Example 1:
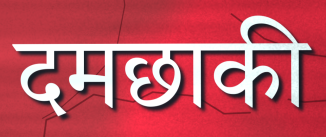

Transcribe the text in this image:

दमछाकी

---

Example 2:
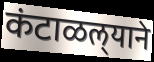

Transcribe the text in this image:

कंटाळल्याने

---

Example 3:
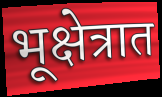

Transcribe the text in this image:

भूक्षेत्रात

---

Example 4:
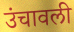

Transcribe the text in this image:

उंचावली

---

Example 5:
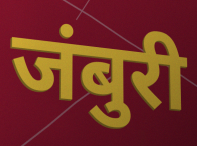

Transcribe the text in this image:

जंबुरी